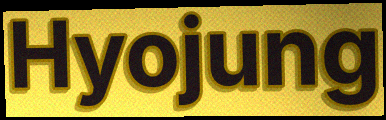
Hyojung